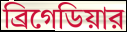
ব্রিগেডিয়ার